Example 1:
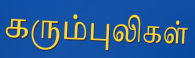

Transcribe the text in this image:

கரும்புலிகள்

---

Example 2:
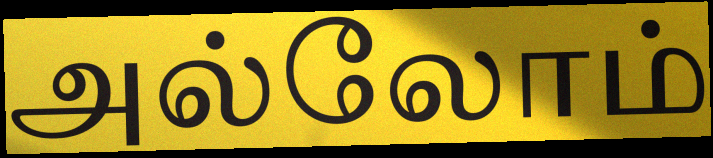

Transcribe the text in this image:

அல்லோம்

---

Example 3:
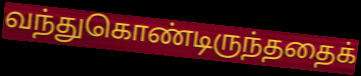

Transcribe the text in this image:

வந்துகொண்டிருந்ததைக்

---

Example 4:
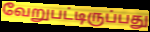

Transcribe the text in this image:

வேறுபட்டிருப்பது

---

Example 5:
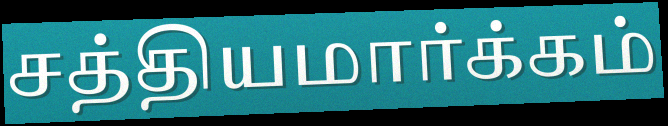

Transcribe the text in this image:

சத்தியமார்க்கம்